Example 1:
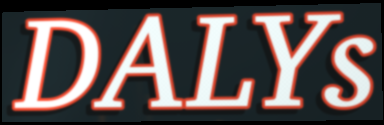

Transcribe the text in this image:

DALYs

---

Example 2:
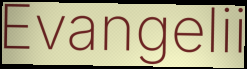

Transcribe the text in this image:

Evangelii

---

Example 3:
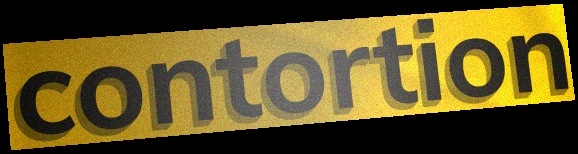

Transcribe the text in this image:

contortion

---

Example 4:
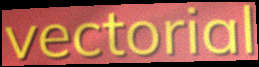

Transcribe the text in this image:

vectorial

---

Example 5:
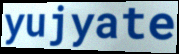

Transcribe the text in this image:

yujyate